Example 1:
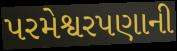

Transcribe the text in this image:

પરમેશ્વરપણાની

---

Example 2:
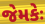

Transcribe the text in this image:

જેમકેઃ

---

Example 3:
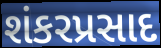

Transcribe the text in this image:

શંકરપ્રસાદ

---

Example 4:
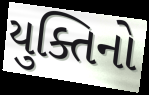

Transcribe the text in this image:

યુક્તિનો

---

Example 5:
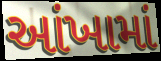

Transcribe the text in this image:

આંખામાં